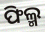
ଫିଲ୍ମ